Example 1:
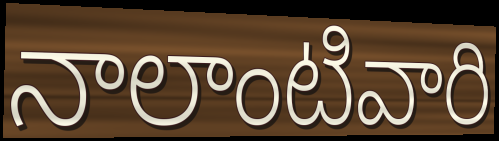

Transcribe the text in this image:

నాలాంటివారి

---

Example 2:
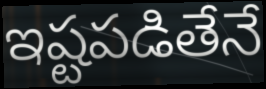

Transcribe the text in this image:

ఇష్టపడితేనే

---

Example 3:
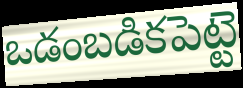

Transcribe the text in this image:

ఒడంబడికపెట్టె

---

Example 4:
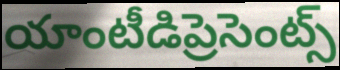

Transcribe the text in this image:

యాంటీడిప్రెసెంట్స్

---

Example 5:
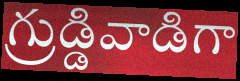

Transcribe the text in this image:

గ్రుడ్డివాడిగా